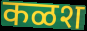
कळश